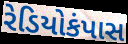
રેડિયોકંપાસ